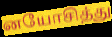
னயோசித்து